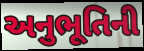
અનુભૂતિની